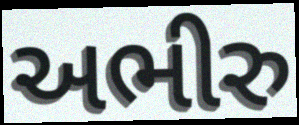
અભીરુ